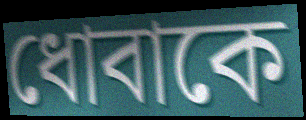
ধোবাকে